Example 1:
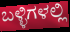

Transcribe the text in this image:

ಬಳ್ಳಿಗಳಲ್ಲಿ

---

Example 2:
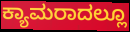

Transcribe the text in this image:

ಕ್ಯಾಮರಾದಲ್ಲೂ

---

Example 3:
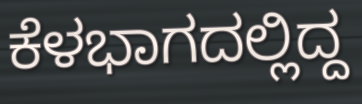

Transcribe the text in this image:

ಕೆಳಭಾಗದಲ್ಲಿದ್ದ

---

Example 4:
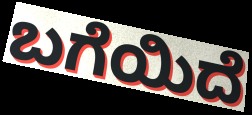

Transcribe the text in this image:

ಬಗೆಯಿದೆ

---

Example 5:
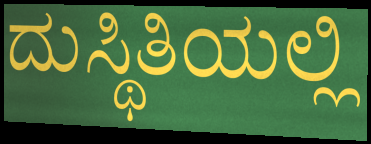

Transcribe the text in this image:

ದುಸ್ಥಿತಿಯಲ್ಲಿ